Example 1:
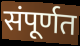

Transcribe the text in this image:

संपूर्णत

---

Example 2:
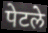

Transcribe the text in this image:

पेटले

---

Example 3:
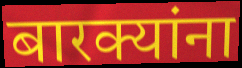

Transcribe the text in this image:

बारक्यांना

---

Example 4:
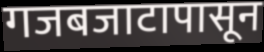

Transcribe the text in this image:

गजबजाटापासून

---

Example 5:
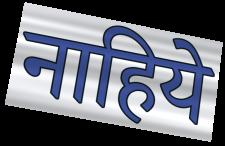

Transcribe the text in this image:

नाहिये